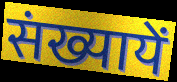
संख्यायें